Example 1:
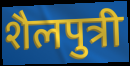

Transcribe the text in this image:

शैलपुत्री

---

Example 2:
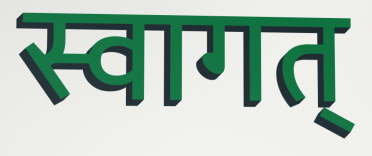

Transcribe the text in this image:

स्वागत्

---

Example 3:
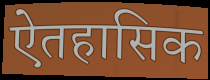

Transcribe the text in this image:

ऐतहासिक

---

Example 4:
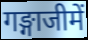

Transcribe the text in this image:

गङ्गाजीमें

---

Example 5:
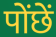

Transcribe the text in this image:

पोंछें